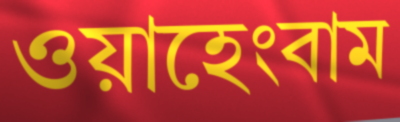
ওয়াহেংবাম